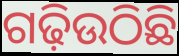
ଗଢ଼ିଉଠିଛି